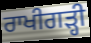
ਰਾਖੀਗੜ੍ਹੀ